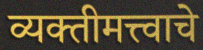
व्यक्तीमत्त्वाचे